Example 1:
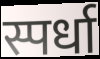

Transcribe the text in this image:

स्पर्धा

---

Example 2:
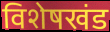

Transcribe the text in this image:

विशेषखंड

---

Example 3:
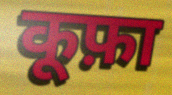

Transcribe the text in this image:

कूफ़ा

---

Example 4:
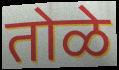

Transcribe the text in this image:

तोळे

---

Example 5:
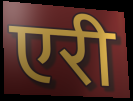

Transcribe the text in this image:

एरी